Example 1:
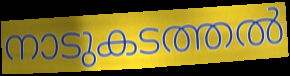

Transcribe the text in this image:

നാടുകടത്തൽ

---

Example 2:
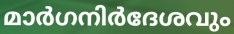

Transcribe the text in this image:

മാർഗനിർദേശവും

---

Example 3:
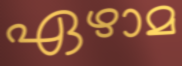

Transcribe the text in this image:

ഏഴാമ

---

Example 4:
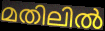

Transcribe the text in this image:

മതിലിൽ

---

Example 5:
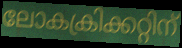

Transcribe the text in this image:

ലോകക്രിക്കറ്റിന്